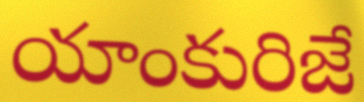
యాంకురిజే